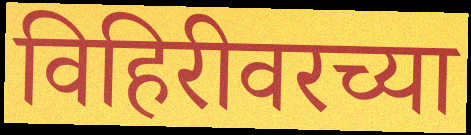
विहिरीवरच्या